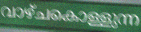
വാഴ്ചകൊള്ളുന്ന